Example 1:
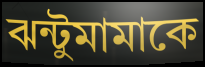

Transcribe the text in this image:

ঝন্টুমামাকে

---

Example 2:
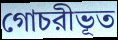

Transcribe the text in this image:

গোচরীভূত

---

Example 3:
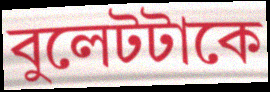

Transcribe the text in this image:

বুলেটটাকে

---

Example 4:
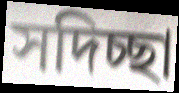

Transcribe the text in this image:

সদিচ্ছা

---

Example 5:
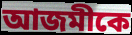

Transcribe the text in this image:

আজমীকে